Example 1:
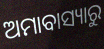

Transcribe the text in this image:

ଅମାବାସ୍ୟାରୁ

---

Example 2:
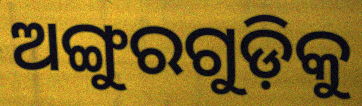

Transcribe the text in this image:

ଅଙ୍ଗୁରଗୁଡ଼ିକୁ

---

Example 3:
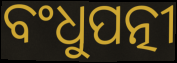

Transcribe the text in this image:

ବଂଧୁପତ୍ନୀ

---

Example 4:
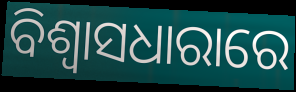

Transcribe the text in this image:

ବିଶ୍ଵାସଧାରାରେ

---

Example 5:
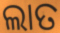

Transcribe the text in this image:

ଲାତ